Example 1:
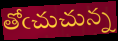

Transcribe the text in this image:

తోఁచుచున్న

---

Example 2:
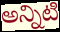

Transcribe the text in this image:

అన్నిటి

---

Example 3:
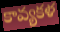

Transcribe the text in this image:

కావ్యకళ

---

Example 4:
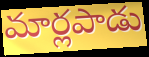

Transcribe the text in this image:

మార్లపాడు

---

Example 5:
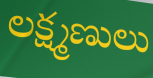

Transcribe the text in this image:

లక్ష్మణులు